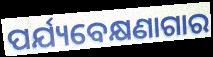
ପର୍ଯ୍ୟବେକ୍ଷଣାଗାର